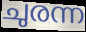
ചുരന്ന